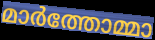
മാർത്തോമ്മാ